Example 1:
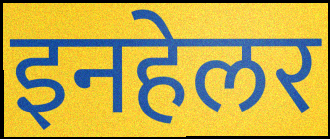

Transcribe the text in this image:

इनहेलर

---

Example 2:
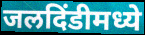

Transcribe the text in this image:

जलदिंडीमध्ये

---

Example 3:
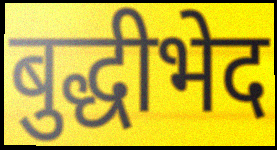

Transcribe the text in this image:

बुद्धीभेद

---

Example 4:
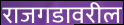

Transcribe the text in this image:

राजगडावरील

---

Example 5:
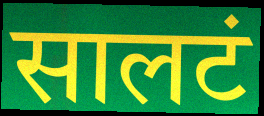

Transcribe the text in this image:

सालटं